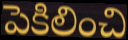
పెకిలించి